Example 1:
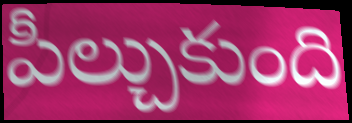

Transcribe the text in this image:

పీల్చుకుంది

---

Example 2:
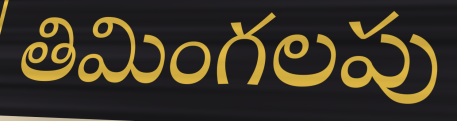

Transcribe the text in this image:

తిమింగలపు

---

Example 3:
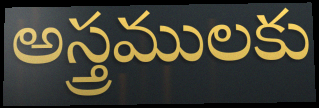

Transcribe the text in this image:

అస్త్రములకు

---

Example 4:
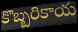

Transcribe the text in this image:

కొబ్బరికాయ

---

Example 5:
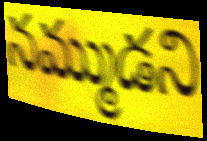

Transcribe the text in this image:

నమ్ముడని